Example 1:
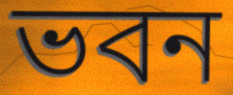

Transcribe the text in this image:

ভবন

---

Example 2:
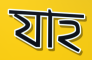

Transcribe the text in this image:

যাহ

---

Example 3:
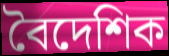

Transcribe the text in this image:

বৈদেশিক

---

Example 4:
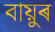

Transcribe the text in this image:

বায়ুৰ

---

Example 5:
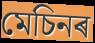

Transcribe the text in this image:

মেচিনৰ